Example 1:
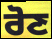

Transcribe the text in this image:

ਰੋਣ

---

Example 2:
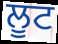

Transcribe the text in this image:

ਲੂਟ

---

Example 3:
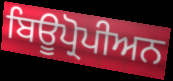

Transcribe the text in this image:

ਬਿਊਪ੍ਰੋਪੀਅਨ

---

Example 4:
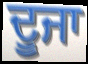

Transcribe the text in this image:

ਦੂਜਾ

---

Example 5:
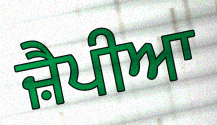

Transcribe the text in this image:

ਜ਼ੈਪੀਆ